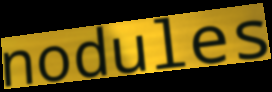
nodules